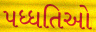
પધ્ધતિઓ